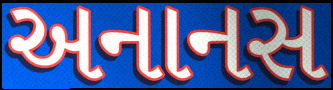
અનાનસ